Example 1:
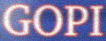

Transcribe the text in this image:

GOPI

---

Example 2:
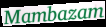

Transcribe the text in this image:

Mambazam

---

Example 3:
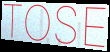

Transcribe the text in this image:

TOSE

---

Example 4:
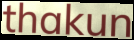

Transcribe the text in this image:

thakun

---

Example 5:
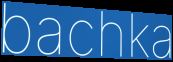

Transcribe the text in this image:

bachka